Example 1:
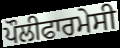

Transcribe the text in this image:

ਪੌਲੀਫਾਰਮੇਸੀ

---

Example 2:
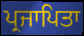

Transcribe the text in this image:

ਪ੍ਰਜਾਪਿਤਾ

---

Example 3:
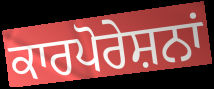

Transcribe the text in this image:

ਕਾਰਪੋਰੇਸ਼ਨਾਂ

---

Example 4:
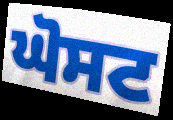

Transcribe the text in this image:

ਘੋਸਟ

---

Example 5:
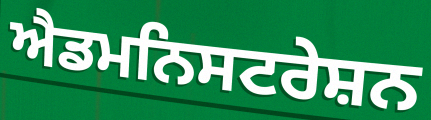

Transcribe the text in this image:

ਐਡਮਨਿਸਟਰੇਸ਼ਨ